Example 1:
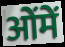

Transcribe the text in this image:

ओंमें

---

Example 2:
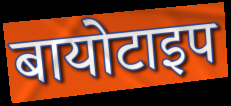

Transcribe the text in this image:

बायोटाइप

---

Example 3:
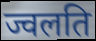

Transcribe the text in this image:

ज्वलति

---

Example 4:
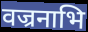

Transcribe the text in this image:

वज्रनाभि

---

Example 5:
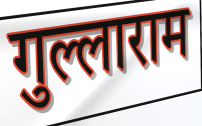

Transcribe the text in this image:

गुल्लाराम